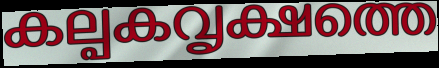
കല്പകവൃക്ഷത്തെ